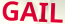
GAIL